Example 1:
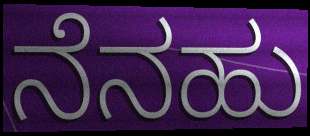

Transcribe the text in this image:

ನೆನಹು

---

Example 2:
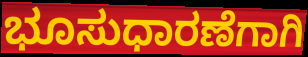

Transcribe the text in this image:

ಭೂಸುಧಾರಣೆಗಾಗಿ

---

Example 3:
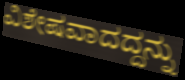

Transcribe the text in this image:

ವಿಶೇಷವಾದದ್ದನ್ನು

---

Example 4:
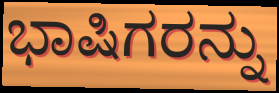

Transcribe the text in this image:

ಭಾಷಿಗರನ್ನು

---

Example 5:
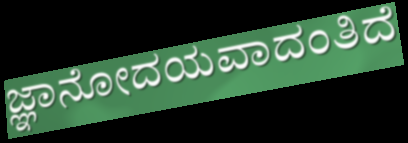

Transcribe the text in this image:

ಜ್ಞಾನೋದಯವಾದಂತಿದೆ